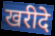
खरीदे